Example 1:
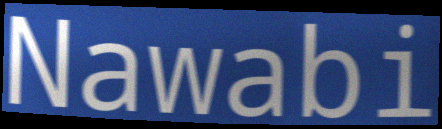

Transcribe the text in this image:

Nawabi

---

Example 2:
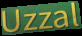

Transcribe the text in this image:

Uzzal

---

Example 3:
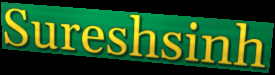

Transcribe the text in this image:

Sureshsinh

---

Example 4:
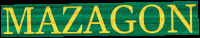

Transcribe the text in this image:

MAZAGON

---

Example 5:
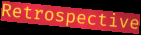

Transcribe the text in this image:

Retrospective